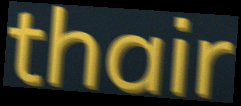
thair